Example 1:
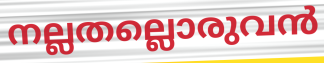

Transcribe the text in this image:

നല്ലതല്ലൊരുവൻ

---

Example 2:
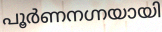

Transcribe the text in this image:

പൂർണനഗ്നയായി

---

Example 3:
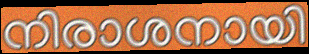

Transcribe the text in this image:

നിരാശനായി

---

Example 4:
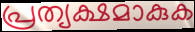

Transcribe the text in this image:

പ്രത്യക്ഷമാകുക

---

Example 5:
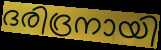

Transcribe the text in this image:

ദരിദ്രനായി